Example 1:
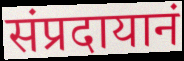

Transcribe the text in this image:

संप्रदायानं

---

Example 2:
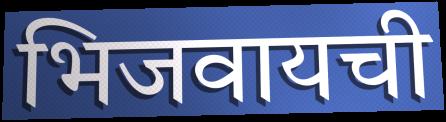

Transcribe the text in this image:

भिजवायची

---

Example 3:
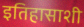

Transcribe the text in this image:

इतिहासाशी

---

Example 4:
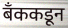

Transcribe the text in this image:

बँककडून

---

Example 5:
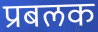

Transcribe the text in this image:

प्रबलक